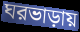
ঘরভাড়ায়